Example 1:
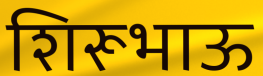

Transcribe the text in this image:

शिरूभाऊ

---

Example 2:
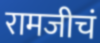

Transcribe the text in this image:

रामजीचं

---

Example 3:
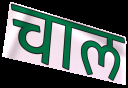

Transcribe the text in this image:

चाल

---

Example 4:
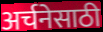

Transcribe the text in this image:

अर्चनेसाठी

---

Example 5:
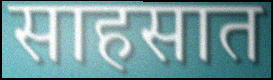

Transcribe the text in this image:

साहसात